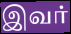
இவர்